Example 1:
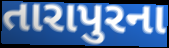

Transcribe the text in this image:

તારાપુરના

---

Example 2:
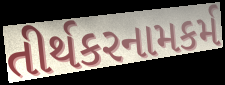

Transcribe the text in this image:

તીર્થકરનામકર્મ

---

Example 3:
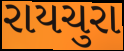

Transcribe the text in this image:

રાયચુરા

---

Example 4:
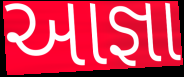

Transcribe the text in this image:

આજ્ઞા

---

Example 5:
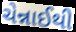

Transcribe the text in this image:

ચેન્નાઈથી